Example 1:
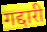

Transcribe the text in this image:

गद्दारी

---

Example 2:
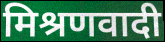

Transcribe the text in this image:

मिश्रणवादी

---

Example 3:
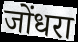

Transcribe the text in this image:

जोंधरा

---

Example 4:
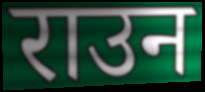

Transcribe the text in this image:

राउन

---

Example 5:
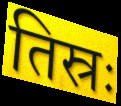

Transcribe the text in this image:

तिस्रः